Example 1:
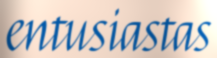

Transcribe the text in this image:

entusiastas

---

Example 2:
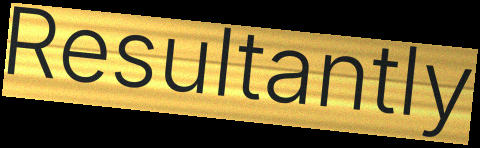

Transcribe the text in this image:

Resultantly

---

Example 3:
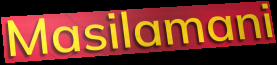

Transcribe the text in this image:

Masilamani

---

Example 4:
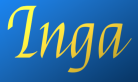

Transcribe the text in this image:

Inga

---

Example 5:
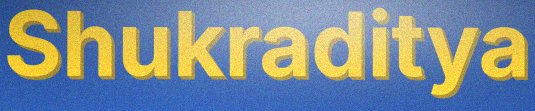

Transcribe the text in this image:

Shukraditya